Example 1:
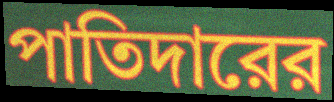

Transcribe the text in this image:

পাতিদারের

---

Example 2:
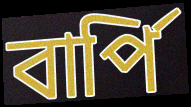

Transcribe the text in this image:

বার্পি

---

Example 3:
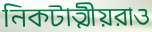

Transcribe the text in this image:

নিকটাত্মীয়রাও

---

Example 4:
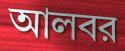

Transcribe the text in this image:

আলবর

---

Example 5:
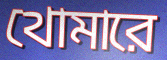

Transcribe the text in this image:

থোমারে